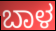
ಬಾಳ